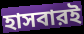
হাসবারই